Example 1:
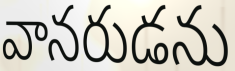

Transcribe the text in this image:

వానరుడను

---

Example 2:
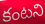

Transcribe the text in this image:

కంటని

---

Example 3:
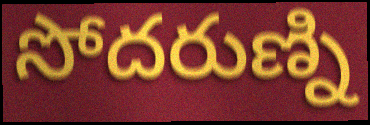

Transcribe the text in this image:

సోదరుణ్ని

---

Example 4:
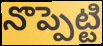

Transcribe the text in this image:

నొప్పెట్టి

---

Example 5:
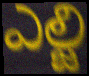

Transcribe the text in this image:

ఎల్జి